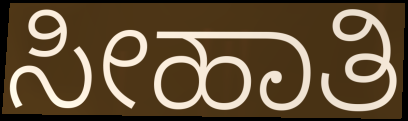
ಸೀಹಾತಿ